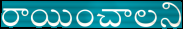
రాయించాలని